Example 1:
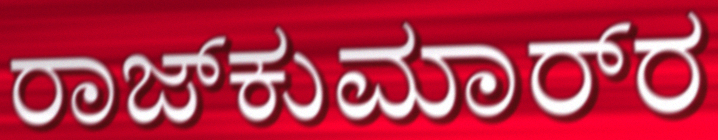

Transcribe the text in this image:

ರಾಜ್‌ಕುಮಾರ್‌ರ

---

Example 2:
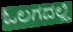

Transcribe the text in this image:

ಓಲಗದಲ್ಲಿ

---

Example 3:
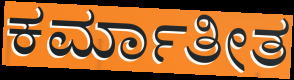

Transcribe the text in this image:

ಕರ್ಮಾತೀತ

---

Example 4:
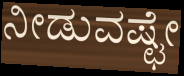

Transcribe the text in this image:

ನೀಡುವಷ್ಟೇ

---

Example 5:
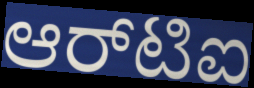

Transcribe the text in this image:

ಆರ್‌ಟಿಐ